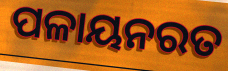
ପଳାୟନରତ